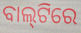
ବାଲ୍‌ଟିରେ